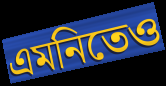
এমনিতেও